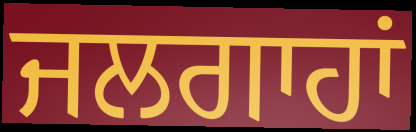
ਜਲਗਾਹਾਂ